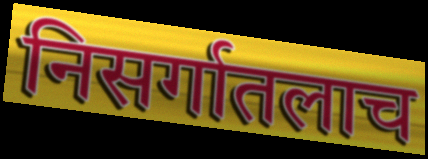
निसर्गातलाच